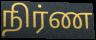
நிர்ண